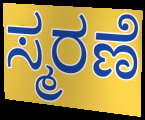
ಸ್ಮರಣೆ